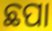
ଛପା